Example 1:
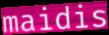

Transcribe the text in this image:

maidis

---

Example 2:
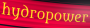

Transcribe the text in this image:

hydropower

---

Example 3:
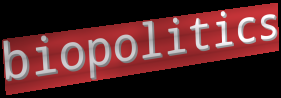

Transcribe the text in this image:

biopolitics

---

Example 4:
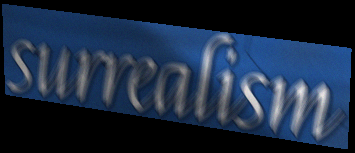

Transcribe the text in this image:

surrealism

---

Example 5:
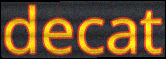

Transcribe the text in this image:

decat